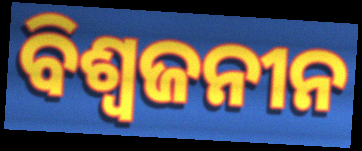
ବିଶ୍ବଜନୀନ